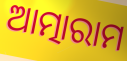
ଆତ୍ମାରାମ